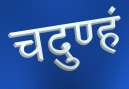
चदुण्हं